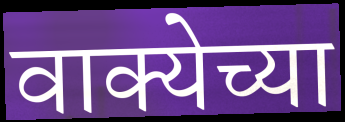
वाक्येच्या